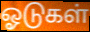
ஓடுகள்